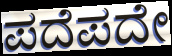
ಪದೆಪದೇ